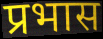
प्रभास